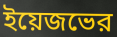
ইয়েজভের